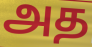
அத